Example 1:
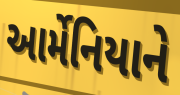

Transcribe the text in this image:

આર્મેનિયાને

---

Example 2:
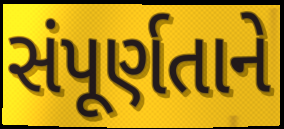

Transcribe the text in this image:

સંપૂર્ણતાને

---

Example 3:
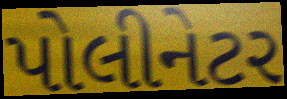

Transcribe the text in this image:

પોલીનેટર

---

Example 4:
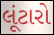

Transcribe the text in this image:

લૂંટારો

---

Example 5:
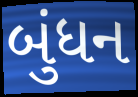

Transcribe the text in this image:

બુંધન